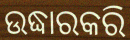
ଉଦ୍ଧାରକରି